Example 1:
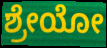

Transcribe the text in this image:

ಶ್ರೇಯೋ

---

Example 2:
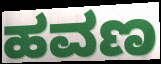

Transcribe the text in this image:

ಹವಣ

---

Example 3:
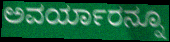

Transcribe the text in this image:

ಅವರ್ಯಾರನ್ನೂ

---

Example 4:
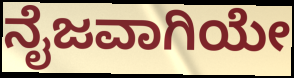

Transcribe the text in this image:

ನೈಜವಾಗಿಯೇ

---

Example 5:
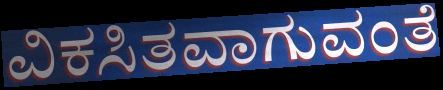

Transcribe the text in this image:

ವಿಕಸಿತವಾಗುವಂತೆ